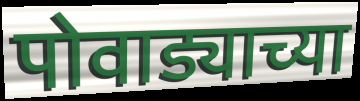
पोवाड्याच्या